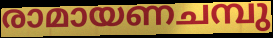
രാമായണചമ്പു